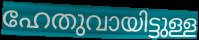
ഹേതുവായിട്ടുള്ള